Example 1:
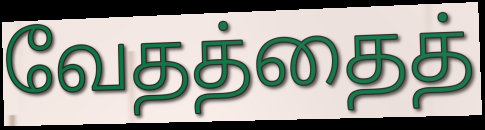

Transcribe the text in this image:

வேதத்தைத்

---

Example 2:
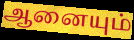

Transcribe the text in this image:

ஆனையும்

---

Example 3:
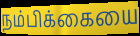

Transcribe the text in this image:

நம்பிக்கையை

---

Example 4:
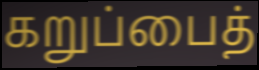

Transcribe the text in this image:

கறுப்பைத்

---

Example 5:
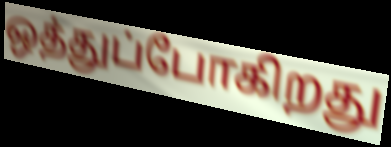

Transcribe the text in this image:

ஒத்துப்போகிறது